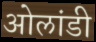
ओलांडी